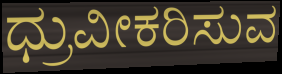
ಧ್ರುವೀಕರಿಸುವ